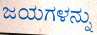
ಜಯಗಳನ್ನು